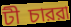
টীচাররা